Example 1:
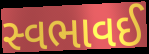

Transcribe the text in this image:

સ્વભાવઈ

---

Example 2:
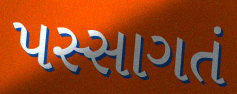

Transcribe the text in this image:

પસ્સાગતં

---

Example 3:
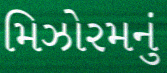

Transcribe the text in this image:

મિઝોરમનું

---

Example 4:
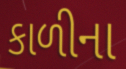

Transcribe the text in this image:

કાળીના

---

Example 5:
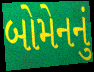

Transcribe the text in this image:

બોમેનનું